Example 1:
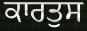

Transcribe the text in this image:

ਕਾਰਤੁਸ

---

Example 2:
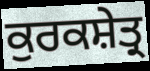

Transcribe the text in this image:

ਕੁਰਕਸ਼ੇਤ੍ਰ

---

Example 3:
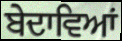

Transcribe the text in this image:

ਬੇਦਾਵਿਆਂ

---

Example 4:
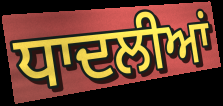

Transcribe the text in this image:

ਧਾਦਲੀਆਂ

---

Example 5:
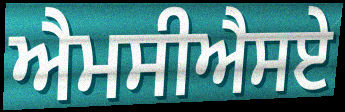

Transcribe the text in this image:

ਐਮਸੀਐਸਏ